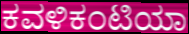
ಕವಳಿಕಂಟಿಯಾ